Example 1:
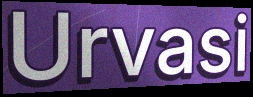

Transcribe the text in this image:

Urvasi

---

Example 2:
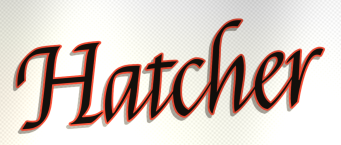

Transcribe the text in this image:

Hatcher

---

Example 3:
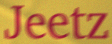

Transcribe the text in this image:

Jeetz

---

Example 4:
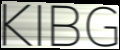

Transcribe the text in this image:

KIBG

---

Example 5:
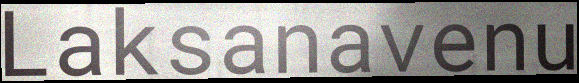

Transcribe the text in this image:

Laksanavenu